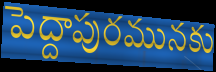
పెద్దాపురమునకు